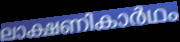
ലാക്ഷണികാർഥം